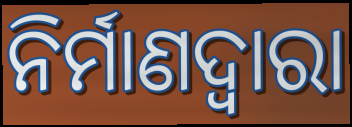
ନିର୍ମାଣଦ୍ୱାରା